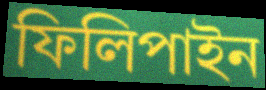
ফিলিপাইন